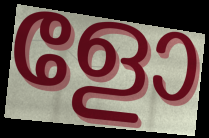
ളോ